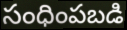
సంధింపబడి